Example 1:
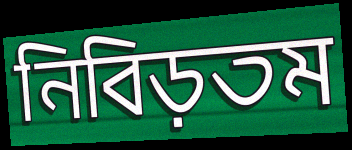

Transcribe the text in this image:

নিবিড়তম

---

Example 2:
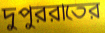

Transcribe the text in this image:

দুপুররাতের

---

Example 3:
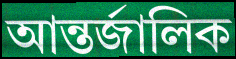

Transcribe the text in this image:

আন্তর্জালিক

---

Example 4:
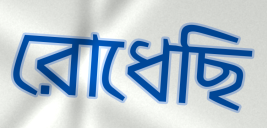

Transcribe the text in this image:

রোধেছি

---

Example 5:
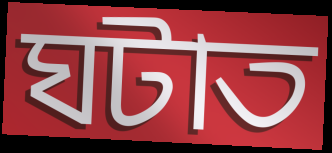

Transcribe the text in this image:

ঘটাত